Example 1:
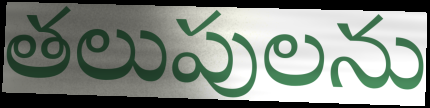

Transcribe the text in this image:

తలుపులను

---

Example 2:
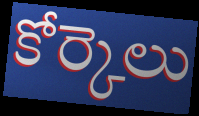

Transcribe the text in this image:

కోర్కెలు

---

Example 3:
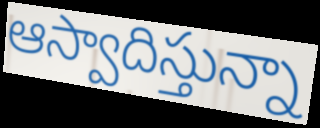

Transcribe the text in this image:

ఆస్వాదిస్తున్నా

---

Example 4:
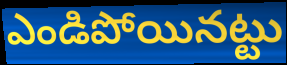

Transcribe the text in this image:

ఎండిపోయినట్టు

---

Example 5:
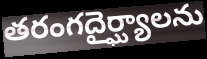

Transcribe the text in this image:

తరంగదైర్ఘ్యాలను